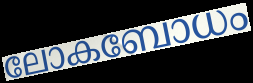
ലോകബോധം